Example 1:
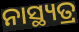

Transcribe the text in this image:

ନାସ୍ଥ୍ୟତ୍ର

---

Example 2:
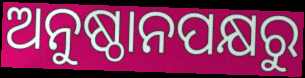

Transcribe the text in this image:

ଅନୁଷ୍ଠାନପକ୍ଷରୁ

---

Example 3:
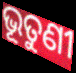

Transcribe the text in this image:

ଭୂତୁଣୀ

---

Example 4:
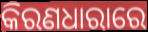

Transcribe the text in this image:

କିରଣଧାରାରେ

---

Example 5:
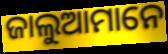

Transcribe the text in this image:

ଜାଲୁଆମାନେ